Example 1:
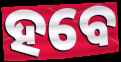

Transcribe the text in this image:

ହବେ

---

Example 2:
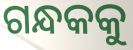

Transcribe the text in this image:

ଗନ୍ଧକକୁ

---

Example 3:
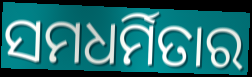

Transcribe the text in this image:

ସମଧର୍ମିତାର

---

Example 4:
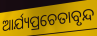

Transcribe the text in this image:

ଆର୍ଯ୍ୟପ୍ରଚେତାବୃନ୍ଦ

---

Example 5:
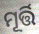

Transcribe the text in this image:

ମୂର୍ତ୍ତି